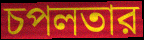
চপলতার